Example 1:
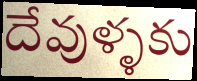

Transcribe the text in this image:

దేవుళ్ళకు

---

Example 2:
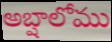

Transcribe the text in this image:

అబ్షాలోము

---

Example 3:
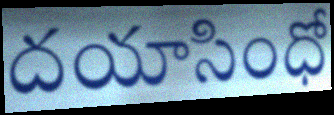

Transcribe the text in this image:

దయాసింధో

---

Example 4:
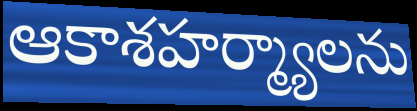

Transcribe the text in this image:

ఆకాశహర్మ్యాలను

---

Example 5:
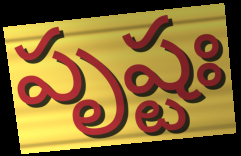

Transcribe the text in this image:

పృష్టః